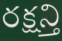
రక్షన్తి